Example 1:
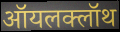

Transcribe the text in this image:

ऑयलक्लॉथ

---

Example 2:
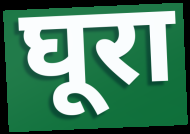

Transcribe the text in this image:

घूरा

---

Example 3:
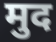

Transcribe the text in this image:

मुद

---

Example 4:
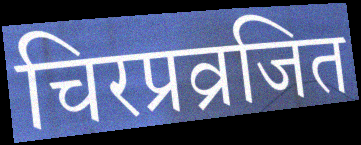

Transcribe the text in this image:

चिरप्रव्रजित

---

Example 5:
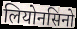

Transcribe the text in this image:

लियोनसिनो